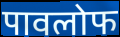
पावलोफ